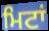
ਮਿਟਾਂ